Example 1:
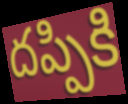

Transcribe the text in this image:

దప్పికి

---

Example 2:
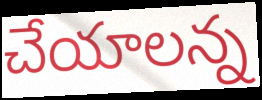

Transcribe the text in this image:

చేయాలన్న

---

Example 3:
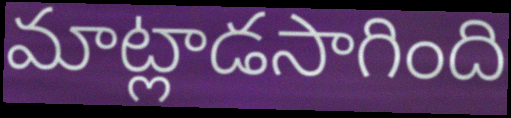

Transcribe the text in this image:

మాట్లాడసాగింది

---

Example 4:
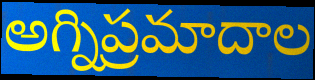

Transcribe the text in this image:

అగ్నిప్రమాదాల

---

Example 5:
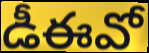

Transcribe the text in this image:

డీఈవో